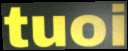
tuoi